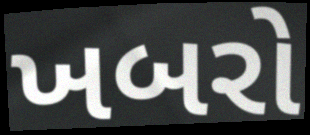
ખબરો